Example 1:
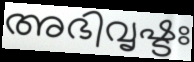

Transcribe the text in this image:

അഭിവൃഷ്ടഃ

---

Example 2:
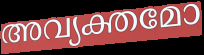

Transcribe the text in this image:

അവ്യക്തമോ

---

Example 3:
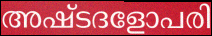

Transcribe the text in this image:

അഷ്ടദളോപരി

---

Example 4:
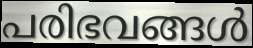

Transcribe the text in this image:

പരിഭവങ്ങൾ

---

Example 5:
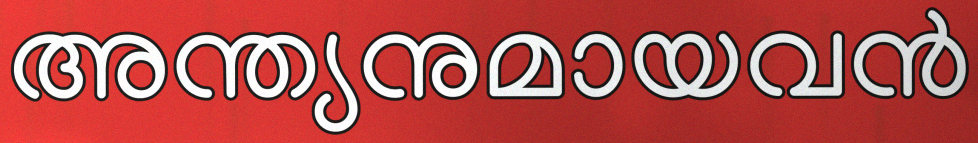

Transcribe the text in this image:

അന്ത്യനുമായവൻ